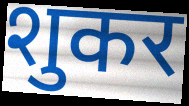
शुकर